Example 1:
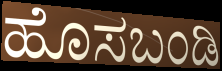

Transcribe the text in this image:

ಹೊಸಬಂಡಿ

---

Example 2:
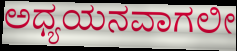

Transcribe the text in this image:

ಅಧ್ಯಯನವಾಗಲೀ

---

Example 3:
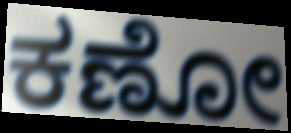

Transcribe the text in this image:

ಕಣೋ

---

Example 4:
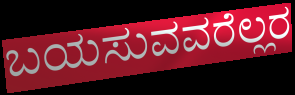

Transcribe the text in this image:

ಬಯಸುವವರೆಲ್ಲರ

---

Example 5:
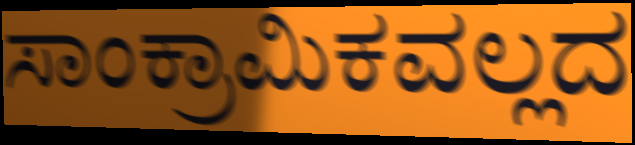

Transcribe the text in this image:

ಸಾಂಕ್ರಾಮಿಕವಲ್ಲದ